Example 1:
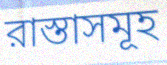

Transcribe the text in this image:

রাস্তাসমূহ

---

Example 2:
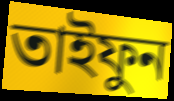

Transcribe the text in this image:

তাইফুন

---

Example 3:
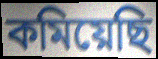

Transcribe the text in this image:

কমিয়েছি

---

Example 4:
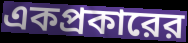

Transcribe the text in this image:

একপ্রকারের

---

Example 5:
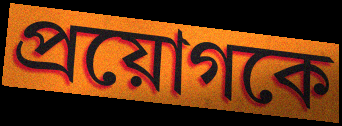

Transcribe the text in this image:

প্রয়োগকে